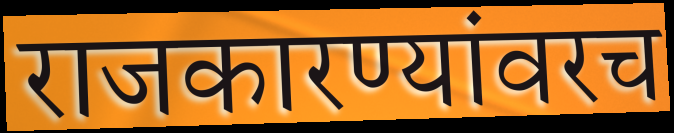
राजकारण्यांवरच